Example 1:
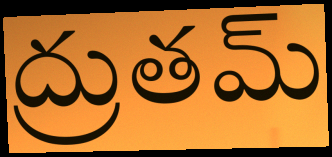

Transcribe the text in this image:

ద్రుతమ్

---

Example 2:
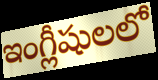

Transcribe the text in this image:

ఇంగ్లీషులలో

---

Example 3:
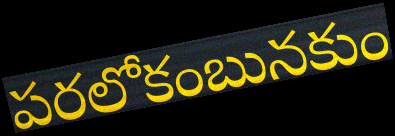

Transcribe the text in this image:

పరలోకంబునకుం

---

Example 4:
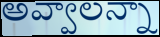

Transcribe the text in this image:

అవ్వాలన్నా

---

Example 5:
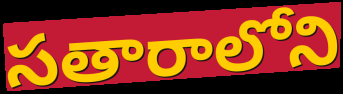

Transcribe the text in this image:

సతారాలోని